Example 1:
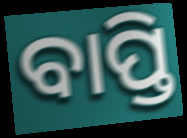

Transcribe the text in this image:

ବାପ୍ତି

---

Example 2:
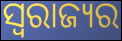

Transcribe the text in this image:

ସ୍ବରାଜ୍ୟର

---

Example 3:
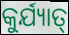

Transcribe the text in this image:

କୁର୍ଯ୍ୟାତ୍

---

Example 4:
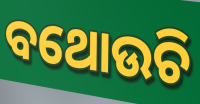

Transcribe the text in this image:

ବଥୋଉଚି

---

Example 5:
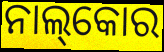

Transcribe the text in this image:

ନାଲ୍‌କୋର